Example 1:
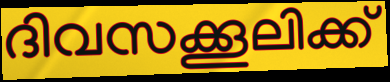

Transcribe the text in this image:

ദിവസക്കൂലിക്ക്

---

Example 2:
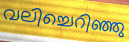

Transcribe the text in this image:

വലിച്ചെറിഞ്ഞു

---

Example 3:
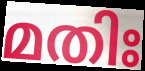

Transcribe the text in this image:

മതിഃ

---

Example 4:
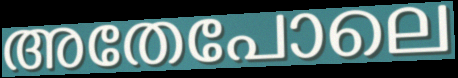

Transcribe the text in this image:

അതേപോലെ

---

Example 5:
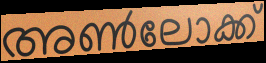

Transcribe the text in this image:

അൺലോക്ക്